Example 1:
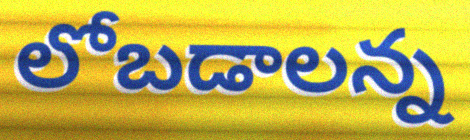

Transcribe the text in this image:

లోబడాలన్న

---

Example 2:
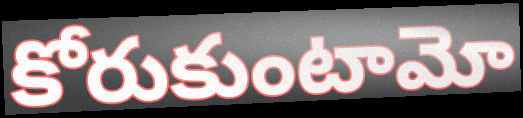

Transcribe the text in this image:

కోరుకుంటామో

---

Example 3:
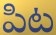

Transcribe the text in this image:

పిట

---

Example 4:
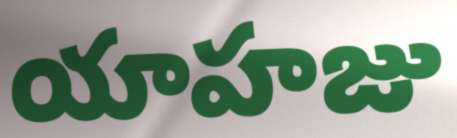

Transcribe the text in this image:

యాహజు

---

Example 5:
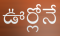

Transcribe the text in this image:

ఊర్లోనే